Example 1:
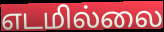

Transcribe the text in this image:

எடமில்லை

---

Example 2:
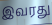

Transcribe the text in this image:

இவரது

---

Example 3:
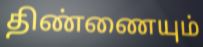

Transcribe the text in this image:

திண்ணையும்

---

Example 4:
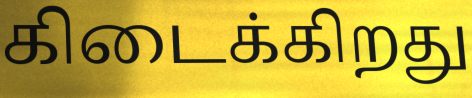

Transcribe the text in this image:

கிடைக்கிறது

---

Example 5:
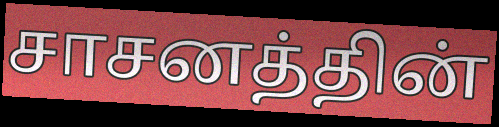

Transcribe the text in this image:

சாசனத்தின்